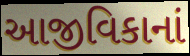
આજીવિકાનાં